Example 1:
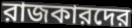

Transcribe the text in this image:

রাজকারদের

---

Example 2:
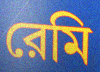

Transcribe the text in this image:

রেমি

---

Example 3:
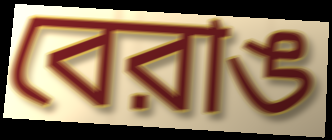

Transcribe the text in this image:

বেরাঙ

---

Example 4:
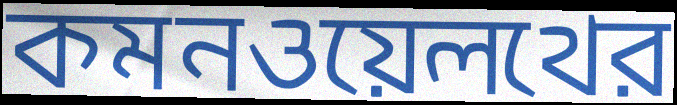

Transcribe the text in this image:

কমনওয়েলথের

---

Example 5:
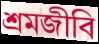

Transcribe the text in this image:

শ্রমজীবি